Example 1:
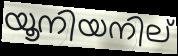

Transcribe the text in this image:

യൂനിയനില്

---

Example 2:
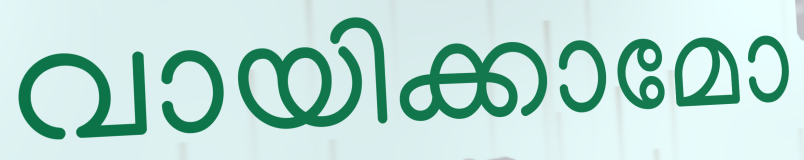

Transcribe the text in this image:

വായിക്കാമോ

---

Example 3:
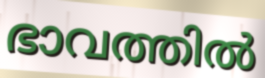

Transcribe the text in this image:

ഭാവത്തിൽ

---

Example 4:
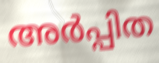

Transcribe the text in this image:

അർപ്പിത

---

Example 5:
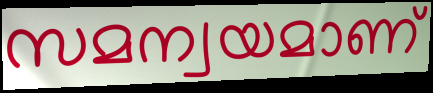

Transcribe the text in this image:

സമന്വയമാണ്